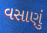
વસાણું